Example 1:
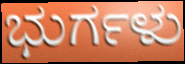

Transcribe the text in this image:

ಭುರ್ಗಳು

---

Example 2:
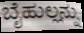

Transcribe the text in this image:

ಬೈಹುಲ್ಲನ್ನು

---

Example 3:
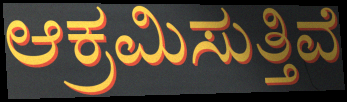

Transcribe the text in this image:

ಆಕ್ರಮಿಸುತ್ತಿವೆ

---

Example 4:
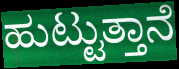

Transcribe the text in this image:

ಹುಟ್ಟುತ್ತಾನೆ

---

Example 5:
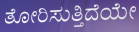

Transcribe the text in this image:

ತೋರಿಸುತ್ತಿದೆಯೇ